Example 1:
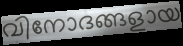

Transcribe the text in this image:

വിനോദങ്ങളായ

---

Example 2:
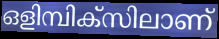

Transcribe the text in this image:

ഒളിമ്പിക്സിലാണ്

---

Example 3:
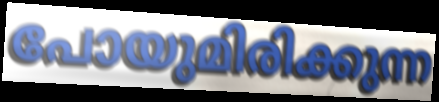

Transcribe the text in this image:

പോയുമിരിക്കുന്ന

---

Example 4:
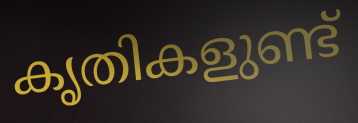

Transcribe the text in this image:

കൃതികളുണ്ട്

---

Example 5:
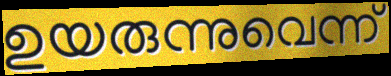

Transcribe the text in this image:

ഉയരുന്നുവെന്ന്